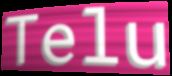
Telu